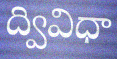
ద్వివిధా